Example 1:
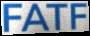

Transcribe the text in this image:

FATF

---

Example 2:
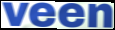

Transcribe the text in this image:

veen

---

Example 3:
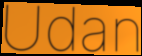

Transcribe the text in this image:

Udan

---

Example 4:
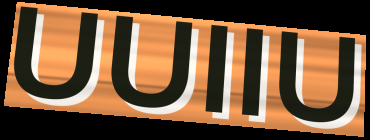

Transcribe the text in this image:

UUIIU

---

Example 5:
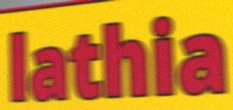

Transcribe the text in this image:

lathia